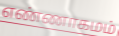
எண்ணாகமம்